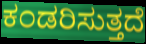
ಕಂಡರಿಸುತ್ತದೆ